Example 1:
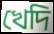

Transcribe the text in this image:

খেদি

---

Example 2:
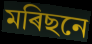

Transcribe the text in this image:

মৰিছনে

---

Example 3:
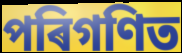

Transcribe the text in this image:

পৰিগণিত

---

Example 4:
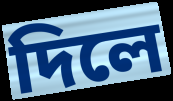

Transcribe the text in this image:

দিলে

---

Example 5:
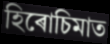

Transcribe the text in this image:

হিৰোচিমাত